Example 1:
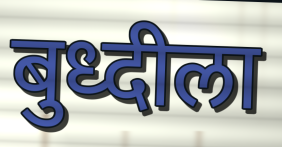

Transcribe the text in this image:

बुध्दीला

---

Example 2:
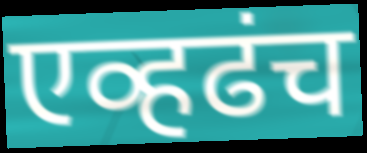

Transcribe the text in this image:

एव्हढंच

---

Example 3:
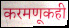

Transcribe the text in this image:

करमणूकही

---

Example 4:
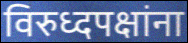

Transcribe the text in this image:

विरुध्दपक्षांना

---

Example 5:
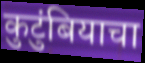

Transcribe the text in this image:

कुटुंबियाचा